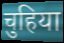
चुहिया